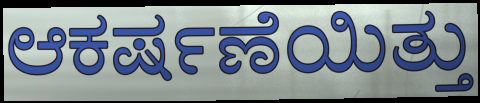
ಆಕರ್ಷಣೆಯಿತ್ತು